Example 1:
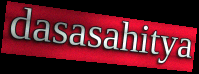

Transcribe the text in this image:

dasasahitya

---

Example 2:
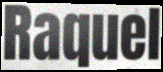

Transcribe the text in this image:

Raquel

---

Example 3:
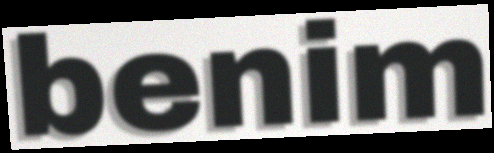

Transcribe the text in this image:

benim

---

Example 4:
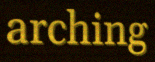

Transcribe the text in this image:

arching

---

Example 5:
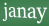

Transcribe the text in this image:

janay